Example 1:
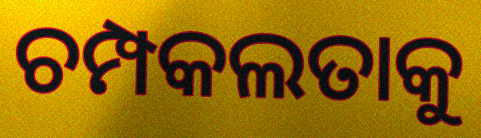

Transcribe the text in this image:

ଚମ୍ପକଲତାକୁ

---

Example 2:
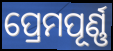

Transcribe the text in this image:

ପ୍ରେମପୂର୍ଣ୍ଣ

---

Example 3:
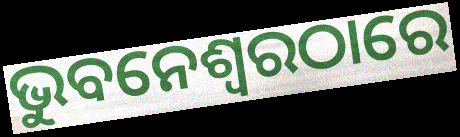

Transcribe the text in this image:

ଭୁବନେଶ୍ଵରଠାରେ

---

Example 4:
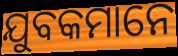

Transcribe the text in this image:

ଯୁବକମାନେ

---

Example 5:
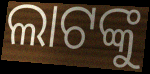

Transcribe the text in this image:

ଲାଟଙ୍କୁ